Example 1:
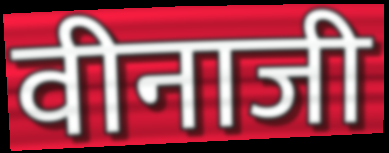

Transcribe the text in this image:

वीनाजी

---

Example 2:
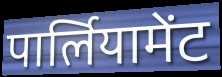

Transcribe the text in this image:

पार्लियामेंट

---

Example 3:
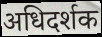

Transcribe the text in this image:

अधिदर्शक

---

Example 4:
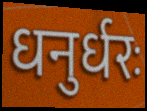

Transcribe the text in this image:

धनुर्धरः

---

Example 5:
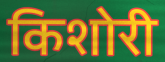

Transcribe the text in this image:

किशोरी